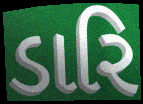
ડારિ